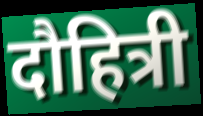
दौहित्री